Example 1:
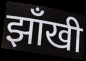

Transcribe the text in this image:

झाँखी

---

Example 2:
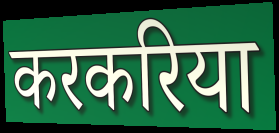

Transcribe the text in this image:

करकरिया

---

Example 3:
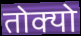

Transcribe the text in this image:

तोक्यो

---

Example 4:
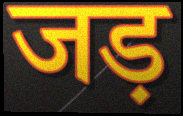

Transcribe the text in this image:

जड़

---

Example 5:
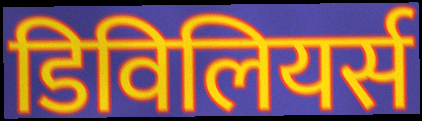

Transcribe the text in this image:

डिविलियर्स